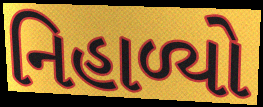
નિહાળ્યો